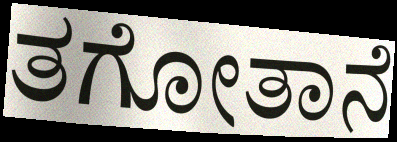
ತಗೋತಾನೆ